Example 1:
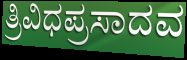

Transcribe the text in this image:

ತ್ರಿವಿಧಪ್ರಸಾದವ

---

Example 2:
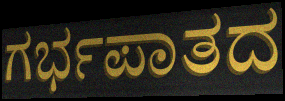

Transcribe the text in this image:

ಗರ್ಭಪಾತದ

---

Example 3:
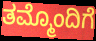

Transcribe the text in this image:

ತಮ್ಮೊಂದಿಗೆ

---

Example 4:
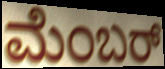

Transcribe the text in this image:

ಮೆಂಬರ್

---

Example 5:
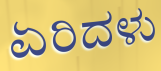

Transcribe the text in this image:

ಏರಿದಳು